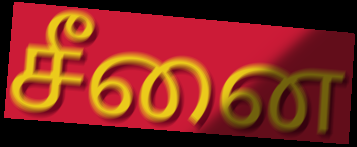
சீனை